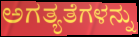
ಅಗತ್ಯತೆಗಳನ್ನು